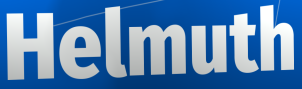
Helmuth